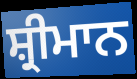
ਸ਼੍ਰੀਮਾਨ